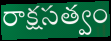
రాక్షసత్వం